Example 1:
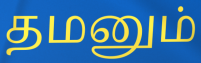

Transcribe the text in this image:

தமனும்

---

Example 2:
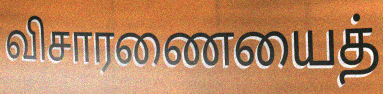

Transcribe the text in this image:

விசாரணையைத்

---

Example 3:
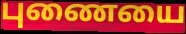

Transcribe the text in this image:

புணையை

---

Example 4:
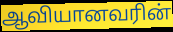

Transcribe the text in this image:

ஆவியானவரின்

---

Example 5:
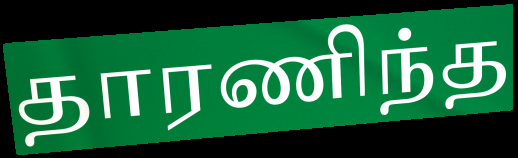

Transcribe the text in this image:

தாரணிந்த